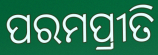
ପରମପ୍ରୀତି